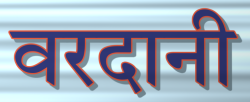
वरदानी